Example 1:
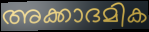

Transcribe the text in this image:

അക്കാദമിക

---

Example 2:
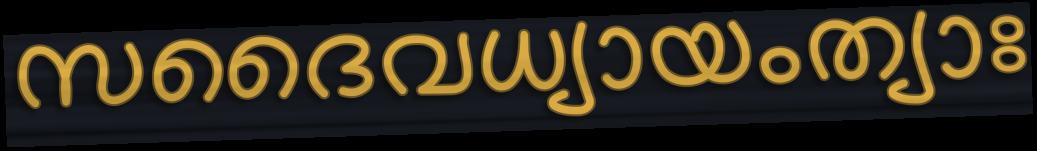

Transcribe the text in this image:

സദൈവധ്യായംത്യാഃ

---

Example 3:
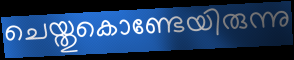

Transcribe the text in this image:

ചെയ്തുകൊണ്ടേയിരുന്നു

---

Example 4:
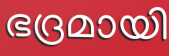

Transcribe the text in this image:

ഭദ്രമായി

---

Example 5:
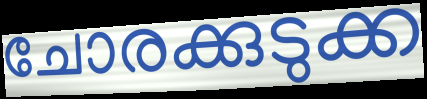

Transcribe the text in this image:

ചോരക്കുടുക്ക